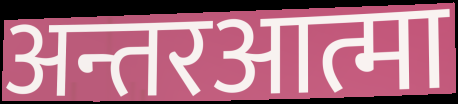
अन्तरआत्मा